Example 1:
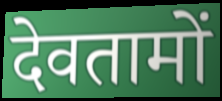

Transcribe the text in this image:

देवतामों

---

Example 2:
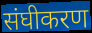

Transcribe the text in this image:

संघीकरण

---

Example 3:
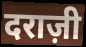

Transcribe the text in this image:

दराज़ी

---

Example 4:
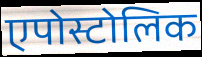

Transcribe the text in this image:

एपोस्टोलिक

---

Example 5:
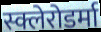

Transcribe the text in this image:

स्क्लेरोडर्मा